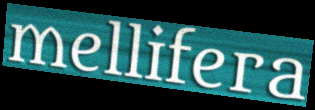
mellifera